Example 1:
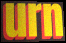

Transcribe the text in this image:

urn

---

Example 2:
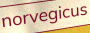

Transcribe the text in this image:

norvegicus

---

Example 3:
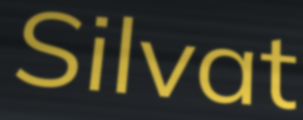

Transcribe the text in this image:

Silvat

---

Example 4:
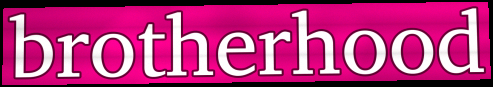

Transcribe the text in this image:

brotherhood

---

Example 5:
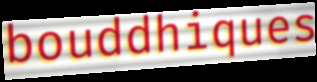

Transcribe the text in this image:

bouddhiques